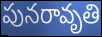
పునరావృతి